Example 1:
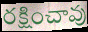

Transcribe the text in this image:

రక్షించావు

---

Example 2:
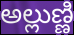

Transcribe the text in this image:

అల్లుణ్ణి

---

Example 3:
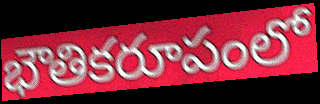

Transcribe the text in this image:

భౌతికరూపంలో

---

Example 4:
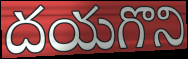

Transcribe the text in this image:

దయగొని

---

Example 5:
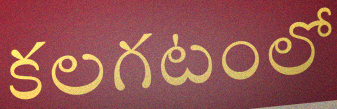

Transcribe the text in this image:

కలగటంలో